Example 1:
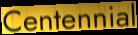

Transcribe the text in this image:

Centennial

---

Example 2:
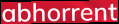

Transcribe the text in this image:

abhorrent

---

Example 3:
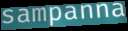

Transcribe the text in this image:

sampanna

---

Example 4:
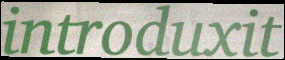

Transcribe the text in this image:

introduxit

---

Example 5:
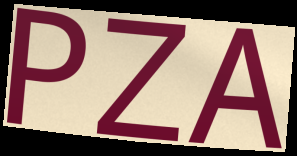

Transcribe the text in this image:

PZA